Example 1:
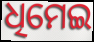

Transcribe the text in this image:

ଧିମେଇ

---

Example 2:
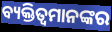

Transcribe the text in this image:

ବ୍ୟକ୍ତିତ୍ୱମାନଙ୍କର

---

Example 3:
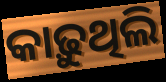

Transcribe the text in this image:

କାଢ଼ୁଥିଲି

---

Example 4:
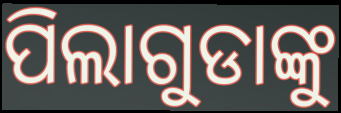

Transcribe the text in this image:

ପିଲାଗୁଡାଙ୍କୁ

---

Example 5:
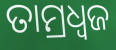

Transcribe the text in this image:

ତାମ୍ରଧ୍ୱଜ